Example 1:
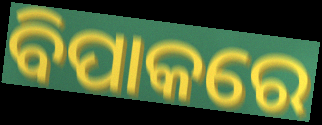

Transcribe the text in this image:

ବିପାକରେ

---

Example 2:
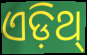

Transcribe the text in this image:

ଏଡ଼ିଥ୍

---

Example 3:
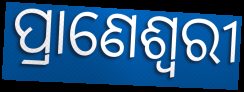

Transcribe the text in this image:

ପ୍ରାଣେଶ୍ୱରୀ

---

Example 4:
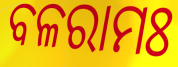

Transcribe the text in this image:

ବଳରାମଃ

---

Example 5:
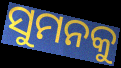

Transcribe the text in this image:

ସୁମନକୁ